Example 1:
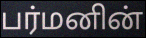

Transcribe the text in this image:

பர்மனின்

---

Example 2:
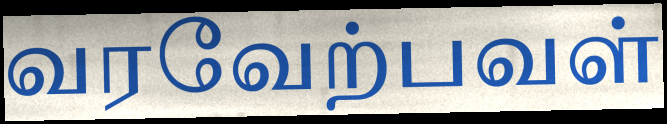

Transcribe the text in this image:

வரவேற்பவள்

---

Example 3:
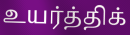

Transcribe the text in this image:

உயர்த்திக்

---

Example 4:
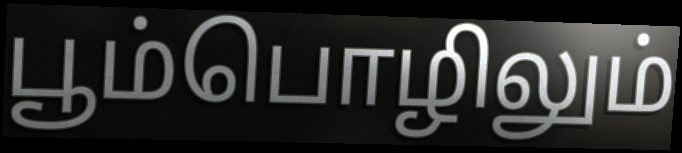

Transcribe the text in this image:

பூம்பொழிலும்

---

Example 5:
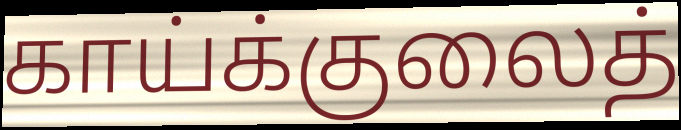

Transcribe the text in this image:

காய்க்குலைத்